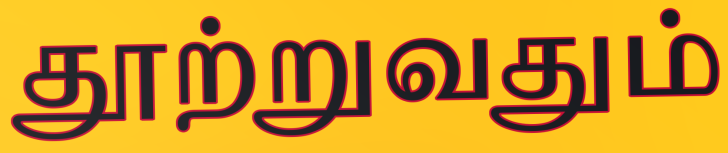
தூற்றுவதும்